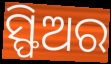
ସ୍ଫିଅର